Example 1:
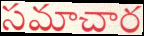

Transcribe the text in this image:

సమాచార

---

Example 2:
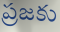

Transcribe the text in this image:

ప్రజకు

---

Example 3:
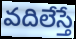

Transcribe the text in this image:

వదిలేస్తే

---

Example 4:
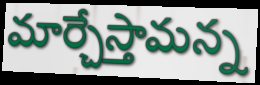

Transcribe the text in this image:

మార్చేస్తామన్న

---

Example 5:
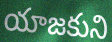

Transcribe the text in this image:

యాజకుని